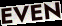
EVEN